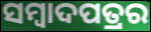
ସମ୍ବାଦପତ୍ରର